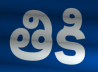
తికి